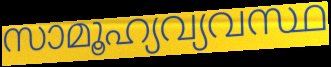
സാമൂഹ്യവ്യവസ്ഥ